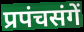
प्रपंचसंगें